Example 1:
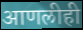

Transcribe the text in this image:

आणलीही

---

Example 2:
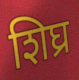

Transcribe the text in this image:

शिघ्र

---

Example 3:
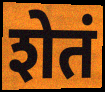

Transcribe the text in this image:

शेतं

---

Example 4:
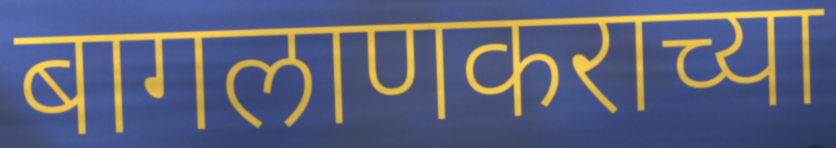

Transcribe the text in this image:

बागलाणकराच्या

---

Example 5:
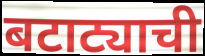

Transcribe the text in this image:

बटाट्याची